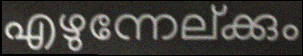
എഴുന്നേല്ക്കും